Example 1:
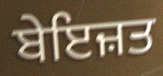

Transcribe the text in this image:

ਬੇਇਜ਼ਤ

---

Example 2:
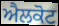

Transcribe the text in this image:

ਐਲਕੋਟ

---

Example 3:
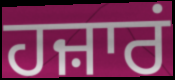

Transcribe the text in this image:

ਹਜ਼ਾਰਂ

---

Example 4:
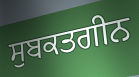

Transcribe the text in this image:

ਸੁਬਕਤਗੀਨ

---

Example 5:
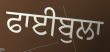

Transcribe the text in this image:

ਫਾਈਬੁਲਾ